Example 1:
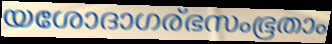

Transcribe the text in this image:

യശോദാഗര്ഭസംഭൂതാം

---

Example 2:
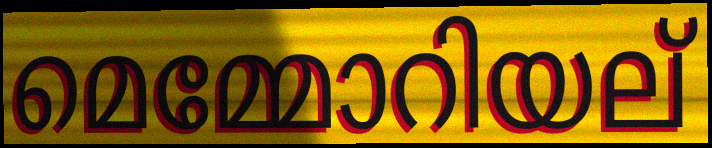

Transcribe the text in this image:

മെമ്മോറിയല്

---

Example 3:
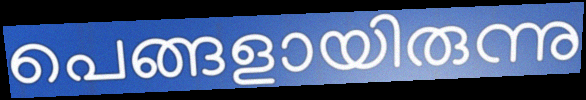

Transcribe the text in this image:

പെങ്ങളായിരുന്നു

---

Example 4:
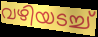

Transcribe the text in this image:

വഴിയടച്ച്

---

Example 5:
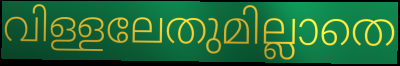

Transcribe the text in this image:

വിള്ളലേതുമില്ലാതെ